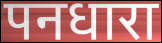
पनधारा